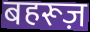
बहरूज़